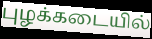
புழக்கடையில்